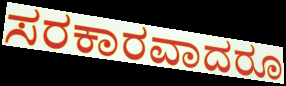
ಸರಕಾರವಾದರೂ